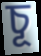
চূ